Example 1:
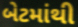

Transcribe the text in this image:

બેટમાંથી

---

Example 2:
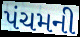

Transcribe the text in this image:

પંચમની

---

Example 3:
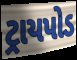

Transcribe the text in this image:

ટ્રાયપોડ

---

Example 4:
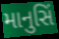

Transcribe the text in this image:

માનુસિં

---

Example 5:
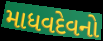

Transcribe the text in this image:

માધવદેવનો